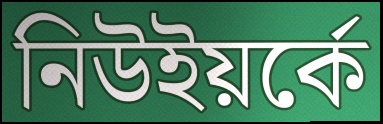
নিউইয়র্কে